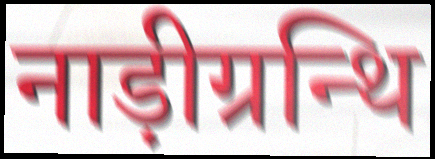
नाड़ीग्रन्थि